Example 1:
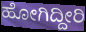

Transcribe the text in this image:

ಹೋಗಿದ್ದೀರಿ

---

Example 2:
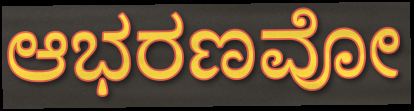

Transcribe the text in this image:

ಆಭರಣವೋ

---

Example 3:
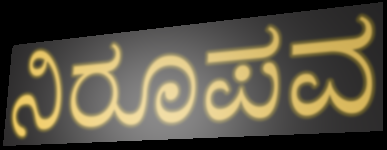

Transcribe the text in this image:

ನಿರೂಪವ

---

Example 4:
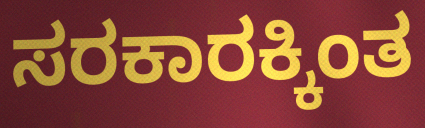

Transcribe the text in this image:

ಸರಕಾರಕ್ಕಿಂತ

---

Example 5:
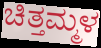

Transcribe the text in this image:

ಚಿತ್ತಮ್ಮಳ